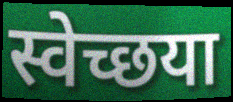
स्वेच्छया